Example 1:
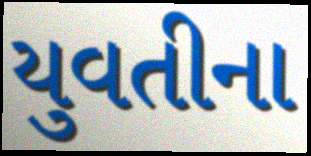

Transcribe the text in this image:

યુવતીના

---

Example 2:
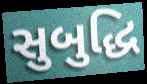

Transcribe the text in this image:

સુબુદ્ધિ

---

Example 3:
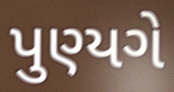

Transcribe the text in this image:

પુણ્યગે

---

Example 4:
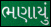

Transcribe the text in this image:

ભણાયું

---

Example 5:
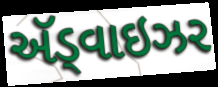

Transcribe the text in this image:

ઍડ્વાઇઝર